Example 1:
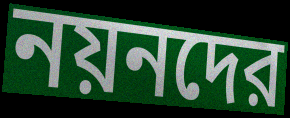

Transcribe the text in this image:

নয়নদের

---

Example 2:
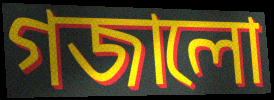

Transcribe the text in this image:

গজালো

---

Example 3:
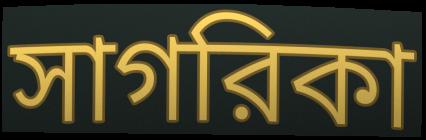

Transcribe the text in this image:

সাগরিকা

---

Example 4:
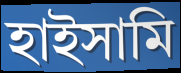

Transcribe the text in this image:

হাইসামি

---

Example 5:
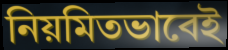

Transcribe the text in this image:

নিয়মিতভাবেই